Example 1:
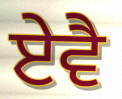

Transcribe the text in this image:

ਏਵੈ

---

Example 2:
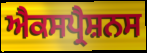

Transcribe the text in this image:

ਐਕਸਪ੍ਰੈਸ਼ਨਸ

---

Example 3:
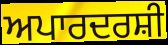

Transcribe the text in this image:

ਅਪਾਰਦਰਸ਼ੀ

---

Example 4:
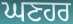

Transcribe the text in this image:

ਘਣਹਰ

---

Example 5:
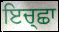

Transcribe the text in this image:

ਇਚ੍ਛਾ